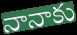
నానాకు